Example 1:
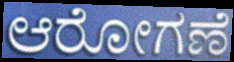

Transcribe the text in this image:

ಆರೋಗಣೆ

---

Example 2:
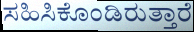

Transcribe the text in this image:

ಸಹಿಸಿಕೊಂಡಿರುತ್ತಾರೆ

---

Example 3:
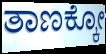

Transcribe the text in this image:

ತಾಣಕ್ಕೋ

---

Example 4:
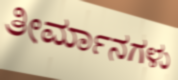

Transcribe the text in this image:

ತೀರ್ಮಾನಗಳು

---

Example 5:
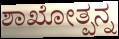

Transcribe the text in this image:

ಶಾಖೋತ್ಪನ್ನ